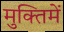
मुक्तिमें